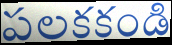
పలకకండి